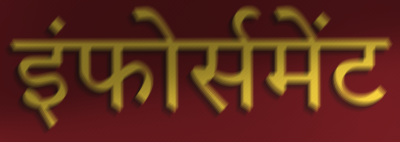
इंफोर्समेंट